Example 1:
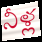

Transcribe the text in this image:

నీళ్ల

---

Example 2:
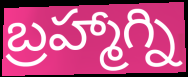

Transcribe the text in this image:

బ్రహ్మాగ్ని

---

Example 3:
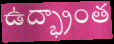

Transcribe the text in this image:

ఉద్భ్రాంత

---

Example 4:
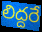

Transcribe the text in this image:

లిద్దరే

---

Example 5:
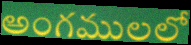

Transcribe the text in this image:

అంగములలో